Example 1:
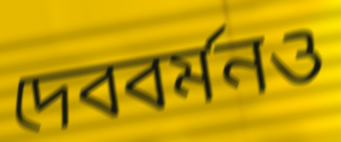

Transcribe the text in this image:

দেববর্মনও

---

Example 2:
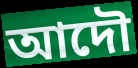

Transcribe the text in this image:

আদৌ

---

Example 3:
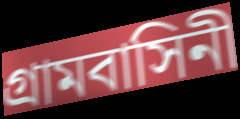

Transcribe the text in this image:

গ্রামবাসিনী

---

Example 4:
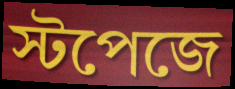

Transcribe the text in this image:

স্টপেজে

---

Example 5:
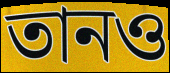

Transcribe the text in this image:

তানও